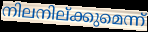
നിലനില്ക്കുമെന്ന്